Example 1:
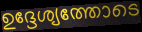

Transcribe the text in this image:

ഉദ്ദേശ്യത്തോടെ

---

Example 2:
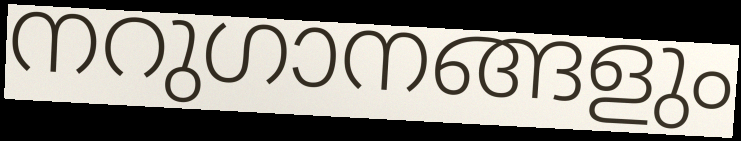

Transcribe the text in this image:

നറുഗാനങ്ങളും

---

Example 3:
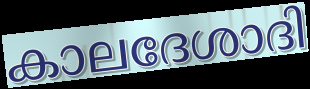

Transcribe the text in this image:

കാലദേശാദി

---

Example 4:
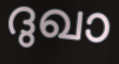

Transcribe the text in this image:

ദുഖാ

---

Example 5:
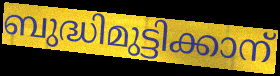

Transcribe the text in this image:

ബുദ്ധിമുട്ടിക്കാന്